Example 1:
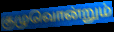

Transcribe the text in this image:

குழுவொன்றும்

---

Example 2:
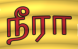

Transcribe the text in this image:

நீரா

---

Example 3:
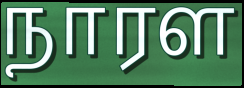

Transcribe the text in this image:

நாரள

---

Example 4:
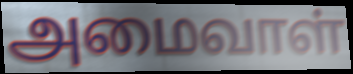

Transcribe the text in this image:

அமைவாள்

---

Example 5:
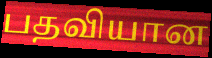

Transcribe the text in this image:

பதவியான